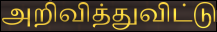
அறிவித்துவிட்டு